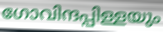
ഗോവിന്ദപ്പിള്ളയും